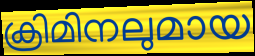
ക്രിമിനലുമായ